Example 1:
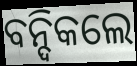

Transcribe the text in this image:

ବନ୍ଦିକଲେ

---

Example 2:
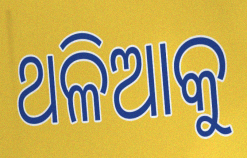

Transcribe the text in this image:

ଥଳିଆକୁ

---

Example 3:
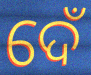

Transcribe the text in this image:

ଦେଁ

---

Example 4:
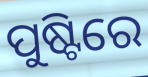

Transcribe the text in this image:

ପୁଷ୍ଟିରେ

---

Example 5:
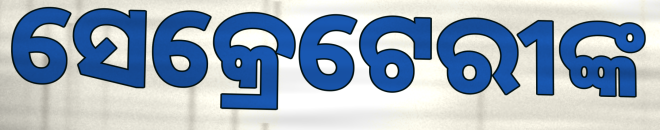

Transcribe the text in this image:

ସେକ୍ରେଟେରୀଙ୍କ